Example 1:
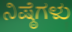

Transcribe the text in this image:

ನಿಷ್ಠೆಗಳು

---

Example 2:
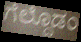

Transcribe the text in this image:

ಗೆಲ್ದೊಡಂ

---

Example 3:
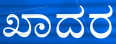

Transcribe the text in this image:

ಖಾದರ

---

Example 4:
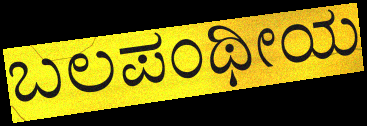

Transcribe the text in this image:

ಬಲಪಂಥೀಯ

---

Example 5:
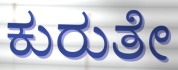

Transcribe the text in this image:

ಕುರುತೇ